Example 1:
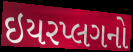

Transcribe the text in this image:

ઇયરપ્લગનો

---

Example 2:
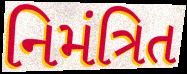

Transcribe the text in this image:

નિમંત્રિત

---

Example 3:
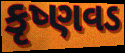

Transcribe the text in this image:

કૃષ્ણવડ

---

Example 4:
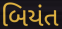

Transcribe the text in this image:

બિયંત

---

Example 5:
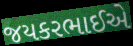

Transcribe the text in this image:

જયકરભાઈએ